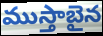
ముస్తాబైన